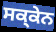
ਸਕ੍ਕੇਨ